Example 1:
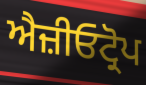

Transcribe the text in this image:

ਐਜ਼ੀਓਟ੍ਰੋਪ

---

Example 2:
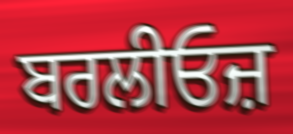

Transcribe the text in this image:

ਬਰਲੀਓਜ਼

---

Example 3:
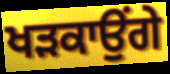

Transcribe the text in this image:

ਖੜਕਾਉਂਗੇ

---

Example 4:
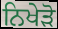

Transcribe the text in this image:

ਨਿਖੇੜੋ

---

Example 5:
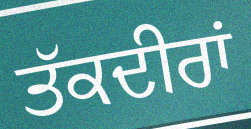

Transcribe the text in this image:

ਤੱਕਦੀਰਾਂ